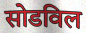
सोडविल